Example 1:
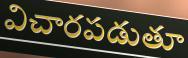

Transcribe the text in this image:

విచారపడుతూ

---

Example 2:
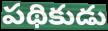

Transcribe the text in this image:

పథికుడు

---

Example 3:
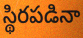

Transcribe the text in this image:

స్థిరపడినా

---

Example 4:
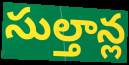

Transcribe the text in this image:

సుల్తాన్ల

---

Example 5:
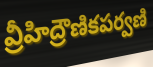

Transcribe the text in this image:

వ్రీహిద్రౌణికపర్వణి